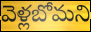
వెళ్లబోమని